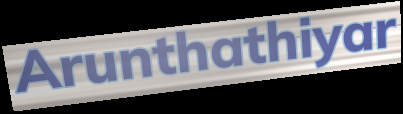
Arunthathiyar